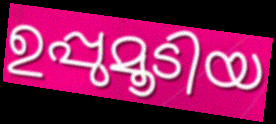
ഉപ്പുമൂടിയ